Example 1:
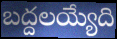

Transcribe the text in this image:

బద్దలయ్యేది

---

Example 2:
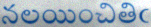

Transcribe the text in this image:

నలయించితిఁ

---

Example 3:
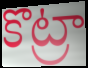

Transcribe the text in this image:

కొట్రా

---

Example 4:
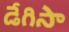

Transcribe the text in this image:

డేగిసా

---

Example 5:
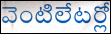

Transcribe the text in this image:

వెంటిలేటర్లో